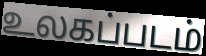
உலகப்படம்